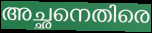
അച്ഛനെതിരെ